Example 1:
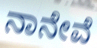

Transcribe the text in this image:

ನಾನೇವೆ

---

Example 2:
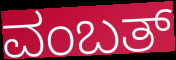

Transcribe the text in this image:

ವಂಬತ್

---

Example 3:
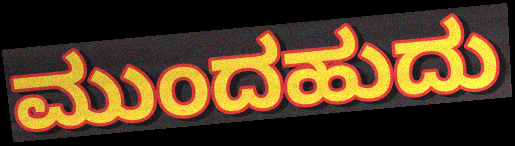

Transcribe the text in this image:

ಮುಂದಹುದು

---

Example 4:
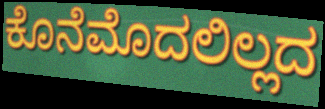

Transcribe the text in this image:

ಕೊನೆಮೊದಲಿಲ್ಲದ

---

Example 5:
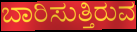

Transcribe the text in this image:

ಬಾರಿಸುತ್ತಿರುವ